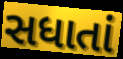
સધાતાં